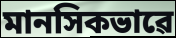
মানসিকভাৱে